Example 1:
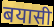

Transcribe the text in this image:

बयासी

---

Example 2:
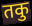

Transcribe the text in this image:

तकु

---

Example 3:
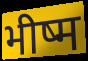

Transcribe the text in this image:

भीष्म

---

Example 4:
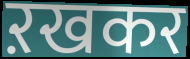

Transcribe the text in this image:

ऱखकर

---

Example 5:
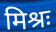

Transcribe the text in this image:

मिश्रः